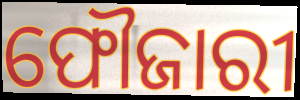
ଫୌଜାରୀ